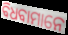
ବିଧବାମାନେ